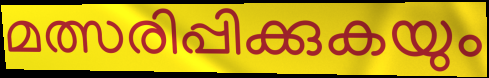
മത്സരിപ്പിക്കുകയും